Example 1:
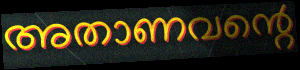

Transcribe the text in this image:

അതാണവന്റെ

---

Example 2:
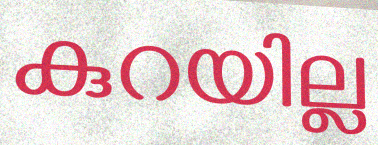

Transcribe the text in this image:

കുറയില്ല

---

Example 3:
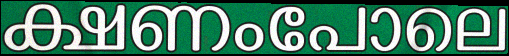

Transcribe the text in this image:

ക്ഷണംപോലെ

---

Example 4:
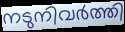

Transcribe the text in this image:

നടുനിവർത്തി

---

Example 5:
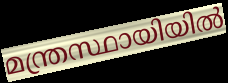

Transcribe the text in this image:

മന്ത്രസ്ഥായിയിൽ